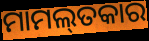
ମାମଲ୍‌ତକାର